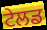
ਟੇਲਡ